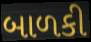
બાળકી